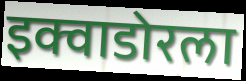
इक्वाडोरला